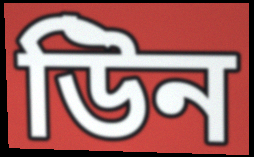
উিন